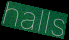
halls